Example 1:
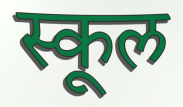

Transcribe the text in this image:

स्कूल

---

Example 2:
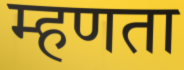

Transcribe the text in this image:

म्हणता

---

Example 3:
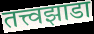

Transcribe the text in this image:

तत्त्वझाडा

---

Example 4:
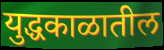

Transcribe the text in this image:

युद्धकाळातील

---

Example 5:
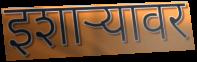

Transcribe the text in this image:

इशार्‍यावर